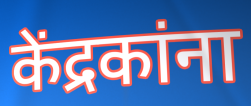
केंद्रकांना